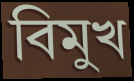
বিমুখ